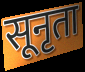
सूनृता